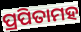
ପ୍ରପିତାମହ